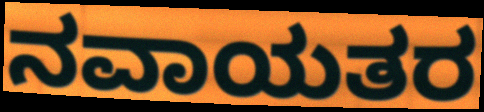
ನವಾಯತರ